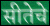
सीतेचे